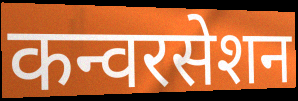
कन्वरसेशन